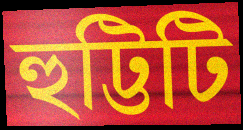
হুট্টিটি